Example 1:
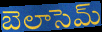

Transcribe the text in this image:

బెలాసెమ్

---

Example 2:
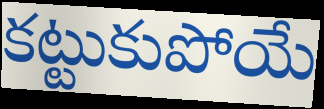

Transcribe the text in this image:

కట్టుకుపోయే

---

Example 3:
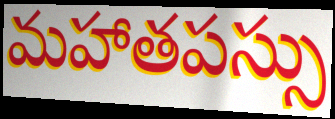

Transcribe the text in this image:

మహాతపస్సు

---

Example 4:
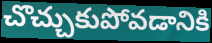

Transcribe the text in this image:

చొచ్చుకుపోవడానికి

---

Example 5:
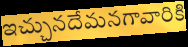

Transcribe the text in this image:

ఇచ్చునదేమనగావారికి